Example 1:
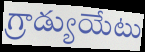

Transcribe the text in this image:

గ్రాడ్యుయేటు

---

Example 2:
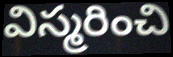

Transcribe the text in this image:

విస్మరించి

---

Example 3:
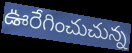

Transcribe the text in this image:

ఊరేగించుచున్న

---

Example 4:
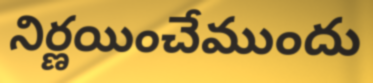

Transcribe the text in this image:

నిర్ణయించేముందు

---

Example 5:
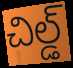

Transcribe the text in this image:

చిల్డ్